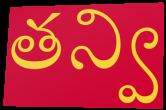
తన్వి